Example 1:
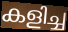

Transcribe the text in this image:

കളിച്ച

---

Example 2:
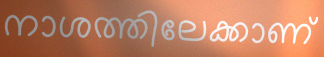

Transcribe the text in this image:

നാശത്തിലേക്കാണ്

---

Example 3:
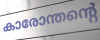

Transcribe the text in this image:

കാരോന്തന്റെ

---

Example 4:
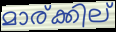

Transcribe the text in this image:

മാര്ക്കില്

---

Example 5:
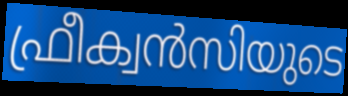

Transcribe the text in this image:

ഫ്രീക്വൻസിയുടെ